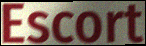
Escort